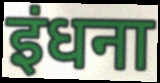
इंधना